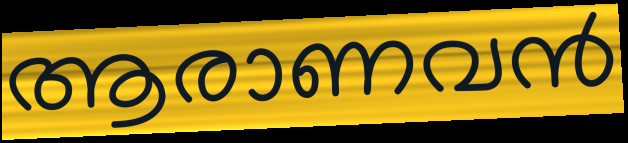
ആരാണവൻ